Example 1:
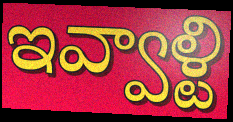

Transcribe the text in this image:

ఇవ్వాళ్టి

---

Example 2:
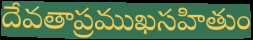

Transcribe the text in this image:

దేవతాప్రముఖసహితుం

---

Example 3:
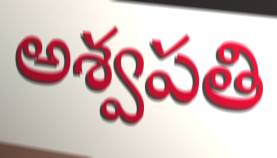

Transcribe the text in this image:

అశ్వపతి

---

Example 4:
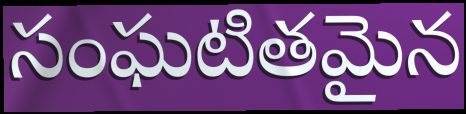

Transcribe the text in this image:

సంఘటితమైన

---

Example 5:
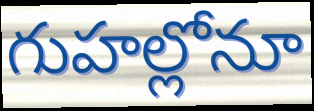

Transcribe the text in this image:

గుహల్లోనూ